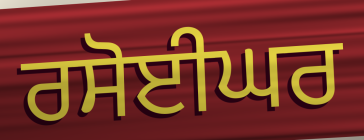
ਰਸੋਈਘਰ